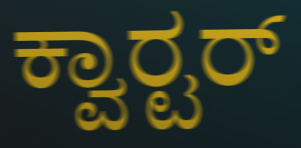
ಕ್ವಾರ‍್ಟರ್